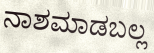
ನಾಶಮಾಡಬಲ್ಲ